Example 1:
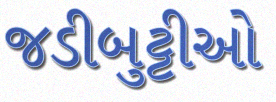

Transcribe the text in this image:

જડીબુટ્ટીઓ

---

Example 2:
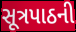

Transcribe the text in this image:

સૂત્રપાઠની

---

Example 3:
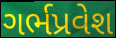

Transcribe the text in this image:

ગર્ભપ્રવેશ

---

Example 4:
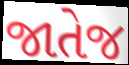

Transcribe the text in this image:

જાતેજ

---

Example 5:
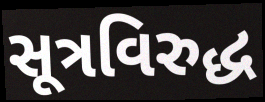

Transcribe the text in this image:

સૂત્રવિરુદ્ધ